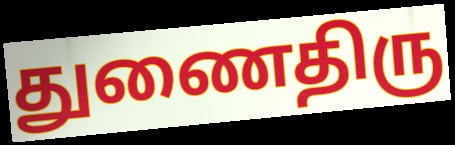
துணைதிரு